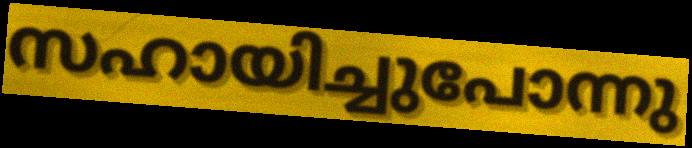
സഹായിച്ചുപോന്നു